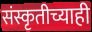
संस्कृतीच्याही